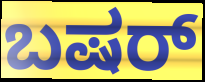
ಬಷರ್